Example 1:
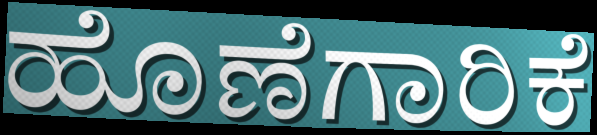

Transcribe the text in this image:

ಹೊಣೆಗಾರಿಕೆ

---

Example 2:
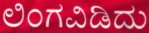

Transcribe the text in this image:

ಲಿಂಗವಿಡಿದು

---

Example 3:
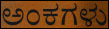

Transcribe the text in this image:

ಅಂಕಗಳು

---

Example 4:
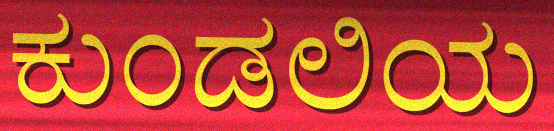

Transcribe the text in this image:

ಕುಂಡಲಿಯ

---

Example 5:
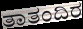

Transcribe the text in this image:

ತಾತಂದಿರ